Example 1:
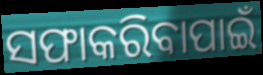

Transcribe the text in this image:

ସଫାକରିବାପାଇଁ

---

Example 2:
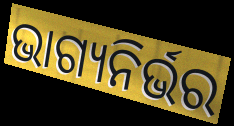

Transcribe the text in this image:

ଭାଗ୍ୟନିର୍ଭର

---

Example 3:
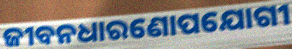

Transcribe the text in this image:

ଜୀବନଧାରଣୋପଯୋଗୀ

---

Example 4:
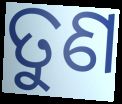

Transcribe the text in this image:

ତୁଣ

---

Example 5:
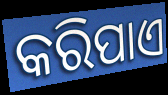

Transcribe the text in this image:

କରିପାଏ